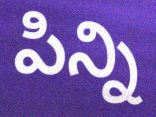
పిన్ని